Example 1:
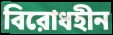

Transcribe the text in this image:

বিরোধহীন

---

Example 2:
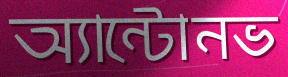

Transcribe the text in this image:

অ্যান্টোনভ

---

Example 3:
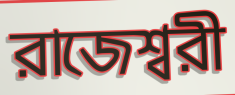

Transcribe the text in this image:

রাজেশ্বরী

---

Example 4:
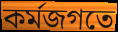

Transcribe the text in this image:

কর্মজগতে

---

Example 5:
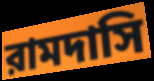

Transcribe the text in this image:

রামদাসি